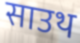
साउथ